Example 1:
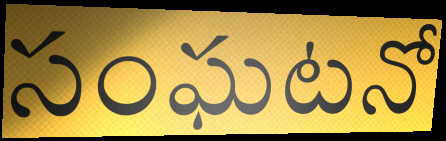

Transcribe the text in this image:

సంఘటనో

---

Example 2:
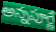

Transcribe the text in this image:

అన్నపూర్ణే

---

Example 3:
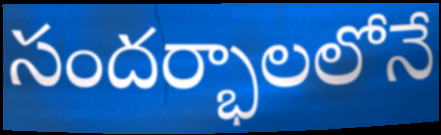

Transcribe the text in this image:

సందర్భాలలోనే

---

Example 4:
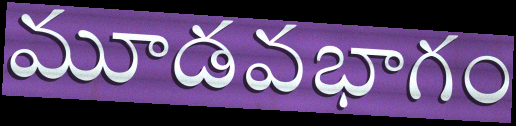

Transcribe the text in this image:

మూడవభాగం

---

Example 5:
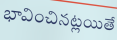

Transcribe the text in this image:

భావించినట్లయితే